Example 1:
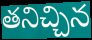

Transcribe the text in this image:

తనిచ్చిన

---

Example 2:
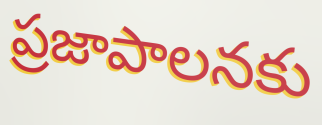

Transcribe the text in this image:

ప్రజాపాలనకు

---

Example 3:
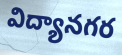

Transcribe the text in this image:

విద్యానగర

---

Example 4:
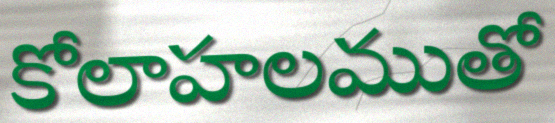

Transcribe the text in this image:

కోలాహలముతో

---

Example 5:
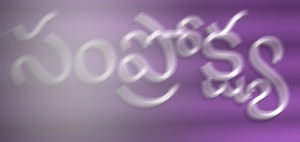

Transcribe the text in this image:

సంప్రోక్ష్య